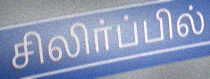
சிலிர்ப்பில்